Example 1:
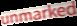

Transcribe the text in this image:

unmarked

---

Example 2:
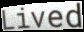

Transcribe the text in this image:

Lived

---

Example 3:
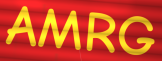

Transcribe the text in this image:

AMRG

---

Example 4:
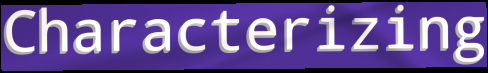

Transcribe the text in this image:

Characterizing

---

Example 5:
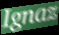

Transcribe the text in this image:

Ignaz